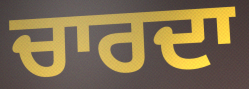
ਚਾਰਦਾ